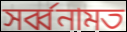
সৰ্ব্বনামত